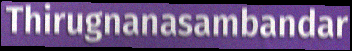
Thirugnanasambandar